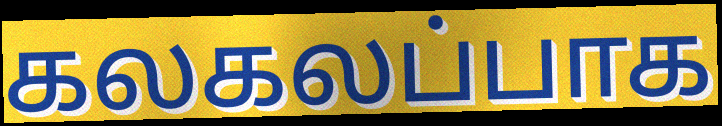
கலகலப்பாக